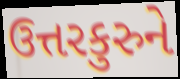
ઉત્તરકુરુને